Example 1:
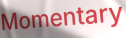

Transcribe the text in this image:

Momentary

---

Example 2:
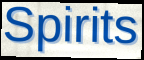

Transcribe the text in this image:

Spirits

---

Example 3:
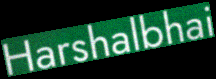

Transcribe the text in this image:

Harshalbhai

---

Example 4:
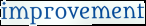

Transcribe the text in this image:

improvement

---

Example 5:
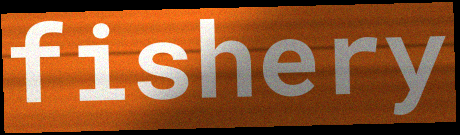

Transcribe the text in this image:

fishery